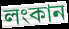
লংকান